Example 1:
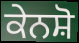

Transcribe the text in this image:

ਕੇਨਸ਼ੋ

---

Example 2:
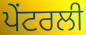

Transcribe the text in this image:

ਪੇਂਟਰਲੀ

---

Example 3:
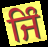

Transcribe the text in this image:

ਜਿੰ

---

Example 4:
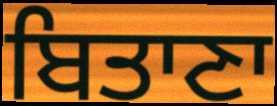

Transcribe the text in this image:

ਬਿਤਾਣਾ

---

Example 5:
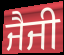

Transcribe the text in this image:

ਜੈਜੀ